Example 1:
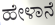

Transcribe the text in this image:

ಹೇಳಾನೆ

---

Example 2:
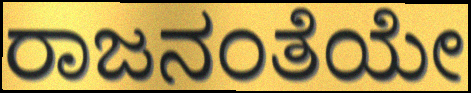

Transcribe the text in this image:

ರಾಜನಂತೆಯೇ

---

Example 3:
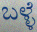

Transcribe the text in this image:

ಬಳ್ಳೆ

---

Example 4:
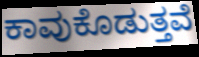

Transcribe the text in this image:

ಕಾವುಕೊಡುತ್ತವೆ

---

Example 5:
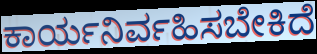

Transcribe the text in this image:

ಕಾರ್ಯನಿರ್ವಹಿಸಬೇಕಿದೆ